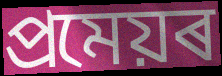
প্ৰমেয়ৰ